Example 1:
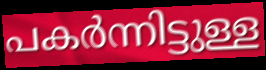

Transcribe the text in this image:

പകർന്നിട്ടുള്ള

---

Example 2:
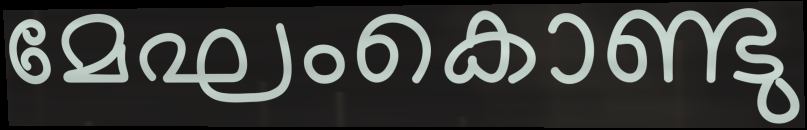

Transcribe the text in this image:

മേഘംകൊണ്ടു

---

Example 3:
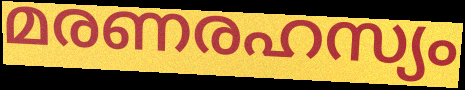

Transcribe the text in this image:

മരണരഹസ്യം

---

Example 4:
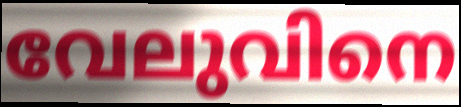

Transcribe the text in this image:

വേലുവിനെ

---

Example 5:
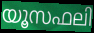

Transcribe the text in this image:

യൂസഫലി